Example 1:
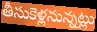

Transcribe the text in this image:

తీసుకెళ్లనున్నట్లు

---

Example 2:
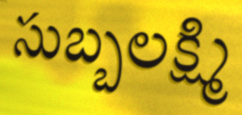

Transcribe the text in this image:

సుబ్బలక్ష్మి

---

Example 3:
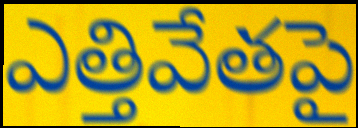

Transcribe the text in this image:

ఎత్తివేతపై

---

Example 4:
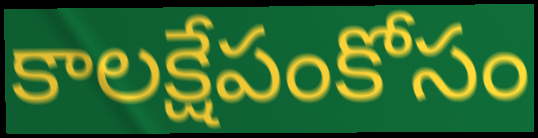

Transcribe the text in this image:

కాలక్షేపంకోసం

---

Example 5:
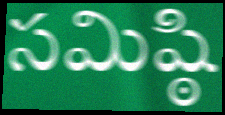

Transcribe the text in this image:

సమిష్ఠి